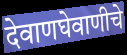
देवाणघेवाणीचे